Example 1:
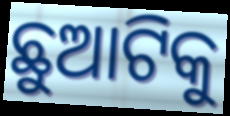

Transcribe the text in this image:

ଛୁଆଟିକୁ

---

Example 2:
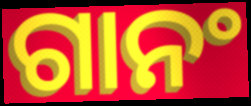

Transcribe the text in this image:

ଗାନଂ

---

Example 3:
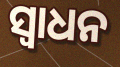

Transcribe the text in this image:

ସ୍ଵାଧନ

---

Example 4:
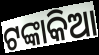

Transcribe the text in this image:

ଟଙ୍କାକିଆ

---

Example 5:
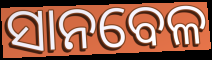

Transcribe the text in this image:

ସାନବେଳ